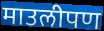
माउलीपण